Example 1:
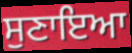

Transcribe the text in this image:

ਸੁਣਾਇਆ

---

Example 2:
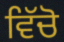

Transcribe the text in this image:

ਵਿੱਚੋ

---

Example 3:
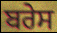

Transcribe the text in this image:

ਬਰੇਸ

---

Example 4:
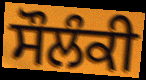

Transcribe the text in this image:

ਸੌਲੰਕੀ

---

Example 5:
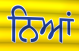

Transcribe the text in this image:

ਨਿਆਂ